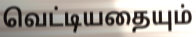
வெட்டியதையும்